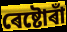
ৰেষ্টোৰাঁ